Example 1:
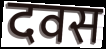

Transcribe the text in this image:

दवस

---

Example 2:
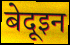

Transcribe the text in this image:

बेदूइन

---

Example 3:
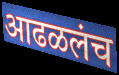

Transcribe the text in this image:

आढळलंच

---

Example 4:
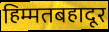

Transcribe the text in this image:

हिम्मतबहादूर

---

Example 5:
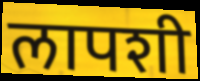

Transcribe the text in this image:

लापशी